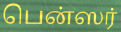
பென்ஸர்